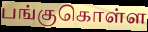
பங்குகொள்ள